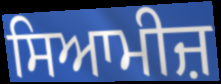
ਸਿਆਮੀਜ਼